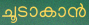
ചൂടാകാൻ